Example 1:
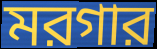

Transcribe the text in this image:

মরগার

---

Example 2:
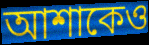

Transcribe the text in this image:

আশাকেও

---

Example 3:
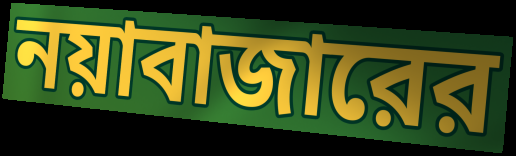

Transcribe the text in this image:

নয়াবাজারের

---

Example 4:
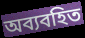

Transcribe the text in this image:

অব্যবহিত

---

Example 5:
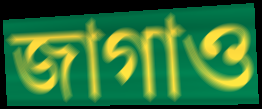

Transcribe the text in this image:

জাগাও